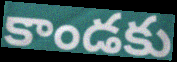
కాండకు